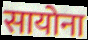
सायोना